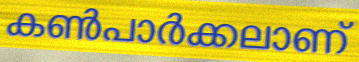
കൺപാർക്കലാണ്